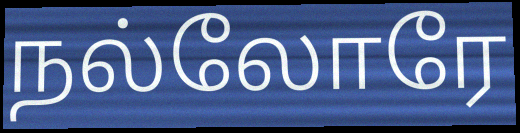
நல்லோரே